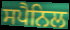
ਸਪੈਨਿਲ